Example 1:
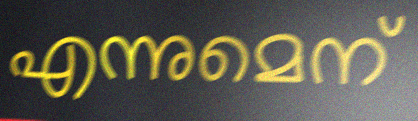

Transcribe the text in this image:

എന്നുമെന്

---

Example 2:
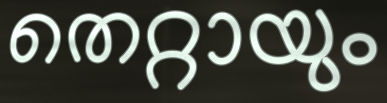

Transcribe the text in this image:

തെറ്റായും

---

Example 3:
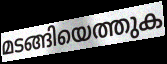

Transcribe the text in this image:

മടങ്ങിയെത്തുക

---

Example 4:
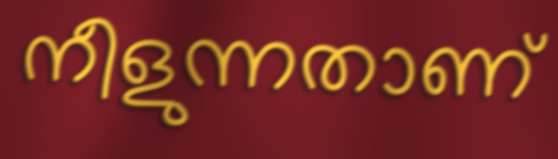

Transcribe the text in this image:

നീളുന്നതാണ്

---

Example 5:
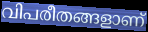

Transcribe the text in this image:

വിപരീതങ്ങളാണ്